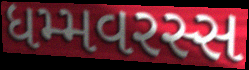
ધમ્મવરસ્સ